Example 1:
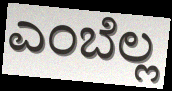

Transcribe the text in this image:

ಎಂಬೆಲ್ಲ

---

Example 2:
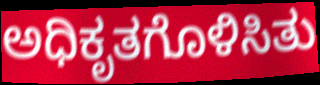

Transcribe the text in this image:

ಅಧಿಕೃತಗೊಳಿಸಿತು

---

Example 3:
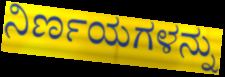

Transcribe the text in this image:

ನಿರ್ಣಯಗಳನ್ನು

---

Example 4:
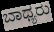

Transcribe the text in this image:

ಬಾಧ್ಯರು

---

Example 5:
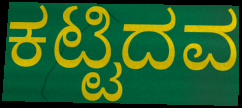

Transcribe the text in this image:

ಕಟ್ಟಿದವ